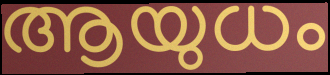
ആയുധം